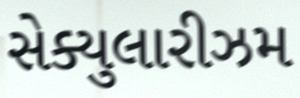
સેક્યુલારીઝમ